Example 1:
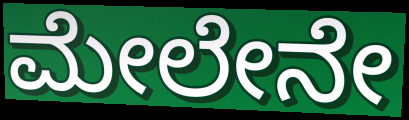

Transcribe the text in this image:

ಮೇಲೇನೇ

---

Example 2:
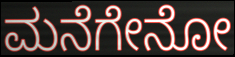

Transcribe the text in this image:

ಮನೆಗೇನೋ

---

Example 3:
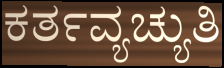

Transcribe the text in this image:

ಕರ್ತವ್ಯಚ್ಯುತಿ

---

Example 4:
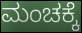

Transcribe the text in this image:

ಮಂಚಕ್ಕೆ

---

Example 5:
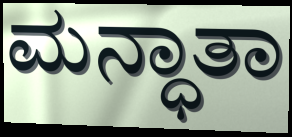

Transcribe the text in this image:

ಮನ್ಧಾತಾ